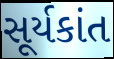
સૂર્યકાંત